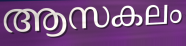
ആസകലം